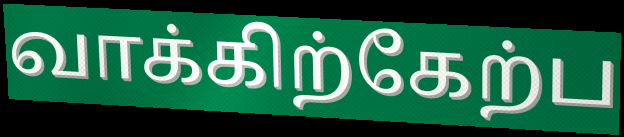
வாக்கிற்கேற்ப